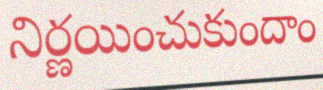
నిర్ణయించుకుందాం